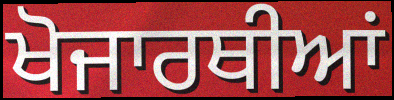
ਖੋਜਾਰਥੀਆਂ